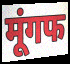
मूंगफ